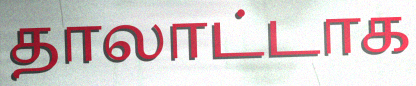
தாலாட்டாக